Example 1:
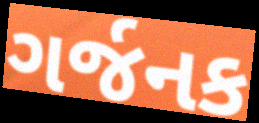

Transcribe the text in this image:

ગર્જનક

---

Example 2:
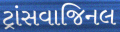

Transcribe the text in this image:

ટ્રાંસવાજિનલ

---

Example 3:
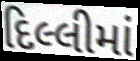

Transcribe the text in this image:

દિલ્લીમાં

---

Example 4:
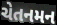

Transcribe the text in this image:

ચેતનમન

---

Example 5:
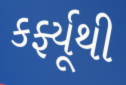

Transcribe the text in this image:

કર્ફ્યૂથી